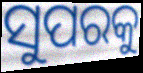
ସୁପରକୁ